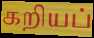
கறியப்